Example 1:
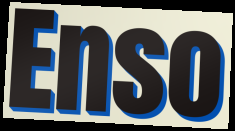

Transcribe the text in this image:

Enso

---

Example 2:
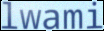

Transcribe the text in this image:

lwami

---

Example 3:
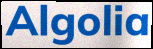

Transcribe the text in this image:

Algolia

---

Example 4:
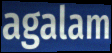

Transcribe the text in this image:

agalam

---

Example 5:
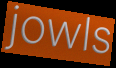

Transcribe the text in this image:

jowls